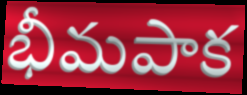
భీమపాక